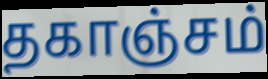
தகாஞ்சம்